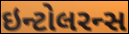
ઇન્ટોલરન્સ